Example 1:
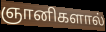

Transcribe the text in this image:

ஞானிகளால்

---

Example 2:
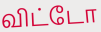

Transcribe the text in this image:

விட்டோ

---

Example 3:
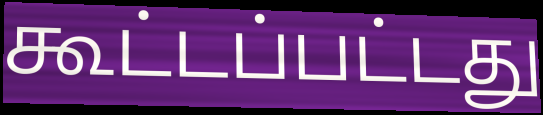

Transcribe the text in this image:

கூட்டப்பட்டது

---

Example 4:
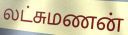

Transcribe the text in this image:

லட்சுமணன்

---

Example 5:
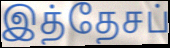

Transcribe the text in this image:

இத்தேசப்